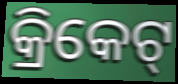
କ୍ରିକେଟ୍